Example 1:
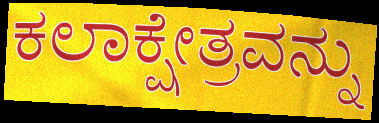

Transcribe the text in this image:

ಕಲಾಕ್ಷೇತ್ರವನ್ನು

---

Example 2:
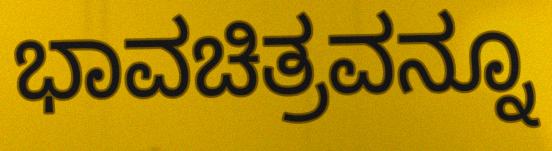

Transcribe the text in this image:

ಭಾವಚಿತ್ರವನ್ನೂ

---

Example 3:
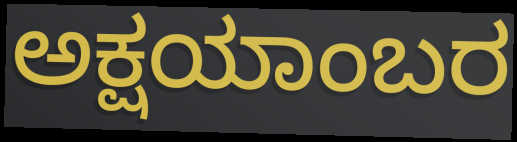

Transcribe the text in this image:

ಅಕ್ಷಯಾಂಬರ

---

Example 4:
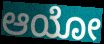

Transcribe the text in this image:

ಆಯೋ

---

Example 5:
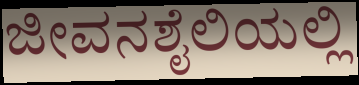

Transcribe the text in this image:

ಜೀವನಶೈಲಿಯಲ್ಲಿ